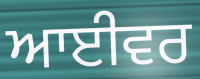
ਆਈਵਰ